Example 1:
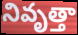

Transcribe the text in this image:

నివృత్తా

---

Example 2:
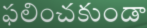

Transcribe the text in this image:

ఫలించకుండా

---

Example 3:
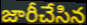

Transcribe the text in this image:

జారీచేసిన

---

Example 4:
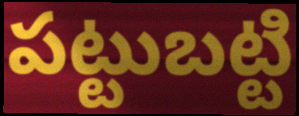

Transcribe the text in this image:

పట్టుబట్టి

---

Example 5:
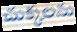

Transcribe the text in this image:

చుక్కలను